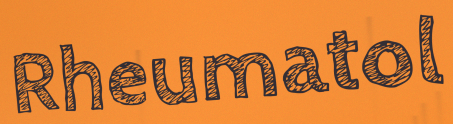
Rheumatol